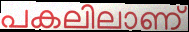
പകലിലാണ്